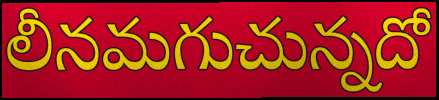
లీనమగుచున్నదో